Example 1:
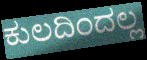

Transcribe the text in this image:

ಕುಲದಿಂದಲ್ಲ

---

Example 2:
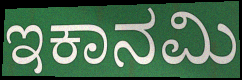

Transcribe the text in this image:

ಇಕಾನಮಿ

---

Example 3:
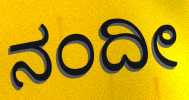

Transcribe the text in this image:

ನಂದೀ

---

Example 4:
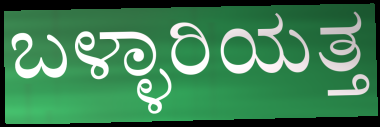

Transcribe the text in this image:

ಬಳ್ಳಾರಿಯತ್ತ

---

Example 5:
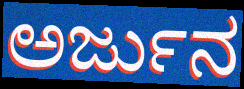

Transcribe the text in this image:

ಅರ್ಜುನ